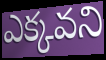
ఎక్కవని